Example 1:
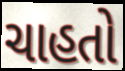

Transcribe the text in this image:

ચાહતો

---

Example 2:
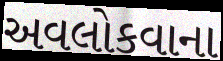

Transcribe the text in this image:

અવલોકવાના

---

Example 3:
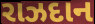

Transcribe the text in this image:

રાઝદાન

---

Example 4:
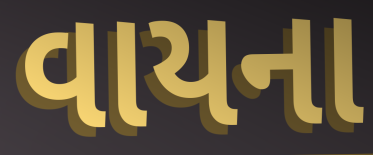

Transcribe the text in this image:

વાયના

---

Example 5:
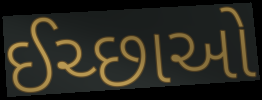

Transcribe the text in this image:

ઈચ્છાઓ